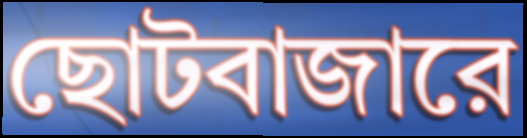
ছোটবাজারে